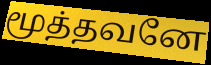
மூத்தவனே